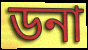
ডনা